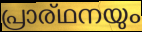
പ്രാര്ഥനയും